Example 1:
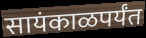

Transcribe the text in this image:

सायंकाळपर्यंत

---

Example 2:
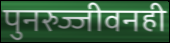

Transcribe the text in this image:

पुनरुज्जीवनही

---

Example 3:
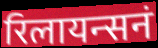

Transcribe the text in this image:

रिलायन्सनं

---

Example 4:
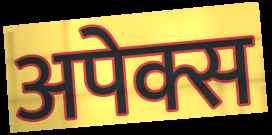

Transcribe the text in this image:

अपेक्स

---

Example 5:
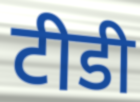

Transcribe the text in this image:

टीडी